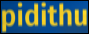
pidithu